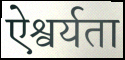
ऐश्वर्यता